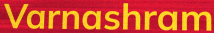
Varnashram